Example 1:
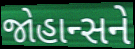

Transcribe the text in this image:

જોહાન્સને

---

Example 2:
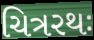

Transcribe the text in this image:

ચિત્રરથઃ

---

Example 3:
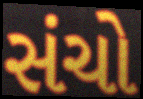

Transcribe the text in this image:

સંચો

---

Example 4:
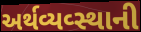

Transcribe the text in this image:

અર્થવ્યવ્સ્થાની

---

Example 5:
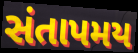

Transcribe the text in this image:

સંતાપમય